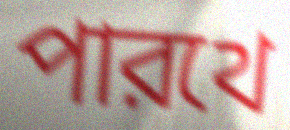
পারথে